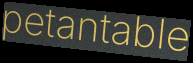
petantable